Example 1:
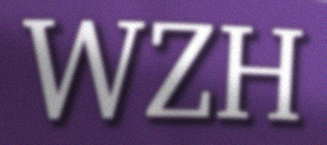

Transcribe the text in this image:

WZH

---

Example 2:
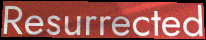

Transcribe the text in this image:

Resurrected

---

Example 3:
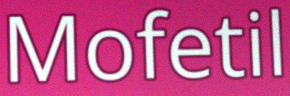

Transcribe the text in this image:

Mofetil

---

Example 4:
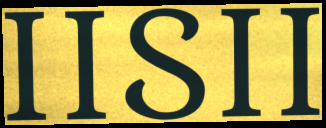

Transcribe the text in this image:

IISII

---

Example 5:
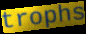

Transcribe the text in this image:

trophs